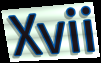
Xvii